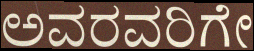
ಅವರವರಿಗೇ